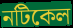
নটিকেল